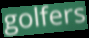
golfers